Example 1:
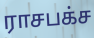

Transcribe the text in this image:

ராசபக்ச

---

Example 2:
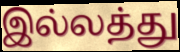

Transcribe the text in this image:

இல்லத்து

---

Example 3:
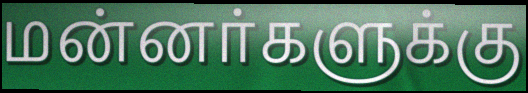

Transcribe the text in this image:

மன்னர்களுக்கு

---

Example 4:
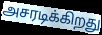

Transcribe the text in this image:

அசரடிக்கிறது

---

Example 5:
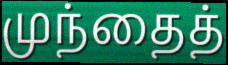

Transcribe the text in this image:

முந்தைத்